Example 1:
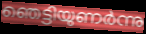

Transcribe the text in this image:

ഞെട്ടിയുണർന്നു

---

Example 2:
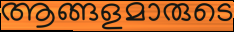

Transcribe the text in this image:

ആങ്ങളമാരുടെ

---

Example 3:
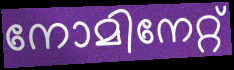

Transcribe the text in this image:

നോമിനേറ്റ്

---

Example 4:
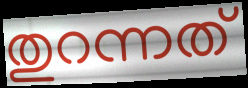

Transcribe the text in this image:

തുറന്നത്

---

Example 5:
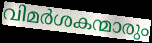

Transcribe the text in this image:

വിമർശകന്മാരും